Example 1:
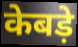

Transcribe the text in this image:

केबड़े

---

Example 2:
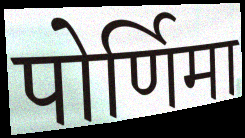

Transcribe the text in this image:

पोर्णिमा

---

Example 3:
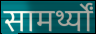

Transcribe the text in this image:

सामर्थ्यों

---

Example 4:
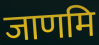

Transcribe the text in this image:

जाणमि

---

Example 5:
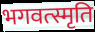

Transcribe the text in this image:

भगवत्स्मृति